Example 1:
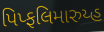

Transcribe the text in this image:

પિપ્ફલિમારુય્હ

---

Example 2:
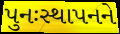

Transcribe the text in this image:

પુનઃસ્થાપનને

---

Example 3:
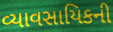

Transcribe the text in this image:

વ્યાવસાયિકની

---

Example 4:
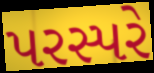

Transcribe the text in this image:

પરસ્પરે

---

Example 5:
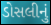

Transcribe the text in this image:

ડોસલીનું